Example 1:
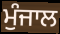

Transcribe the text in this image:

ਮੁੰਜਾਲ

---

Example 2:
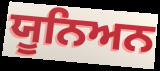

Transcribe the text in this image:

ਯੂਨਿਅਨ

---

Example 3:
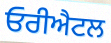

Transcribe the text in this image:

ਓਰੀਐਟਲ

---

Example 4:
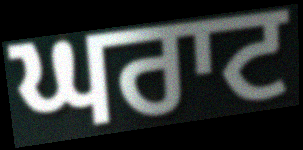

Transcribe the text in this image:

ਘਰਾਟ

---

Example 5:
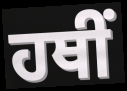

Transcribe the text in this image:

ਹਥੀਂ